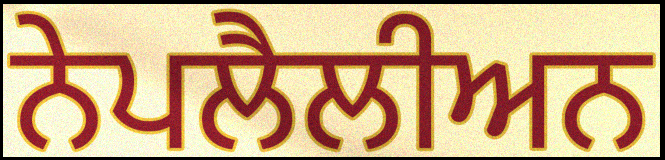
ਨੇਪਲੈਲੀਅਨ